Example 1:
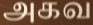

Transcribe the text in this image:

அகவ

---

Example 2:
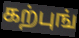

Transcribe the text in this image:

கற்புங்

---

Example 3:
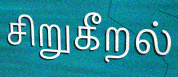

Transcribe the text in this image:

சிறுகீறல்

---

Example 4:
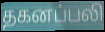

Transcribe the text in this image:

தகனப்பலி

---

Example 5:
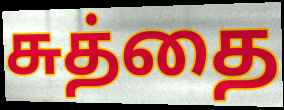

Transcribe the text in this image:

சுத்தை